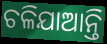
ଚଳିଯାଆନ୍ତି